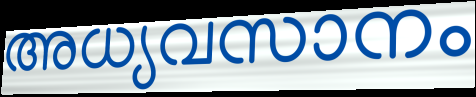
അധ്യവസാനം